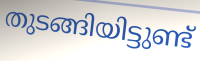
തുടങ്ങിയിട്ടുണ്ട്